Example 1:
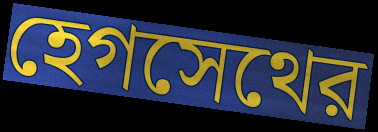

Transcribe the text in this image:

হেগসেথের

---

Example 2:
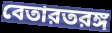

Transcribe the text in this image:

বেতারতরঙ্গ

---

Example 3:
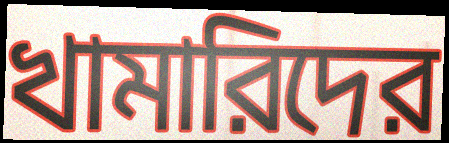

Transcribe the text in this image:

খামারিদের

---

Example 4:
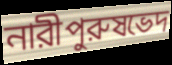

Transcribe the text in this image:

নারীপুরুষভেদ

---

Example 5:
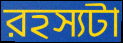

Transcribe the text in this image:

রহস্যটা